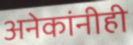
अनेकांनीही